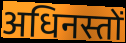
अधिनस्तों